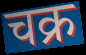
चक्र